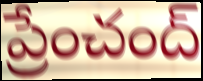
ప్రేంచంద్